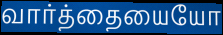
வார்த்தையையோ